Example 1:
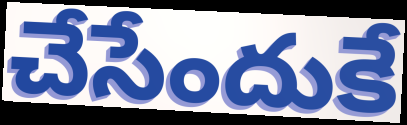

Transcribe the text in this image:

చేసేందుకే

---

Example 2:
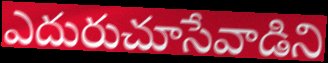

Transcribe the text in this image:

ఎదురుచూసేవాడిని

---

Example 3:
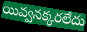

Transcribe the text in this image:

యివ్వనక్కరలేదు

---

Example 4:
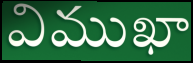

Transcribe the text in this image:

విముఖా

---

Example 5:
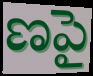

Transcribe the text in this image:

ణపై